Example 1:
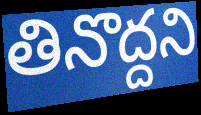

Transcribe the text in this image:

తినొద్దని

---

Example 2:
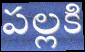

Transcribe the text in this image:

పల్లకి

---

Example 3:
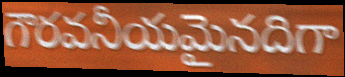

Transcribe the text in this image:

గౌరవనీయమైనదిగా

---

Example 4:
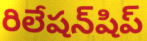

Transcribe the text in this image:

రిలేషన్‌షిప్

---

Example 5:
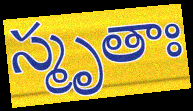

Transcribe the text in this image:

స్మృతాః